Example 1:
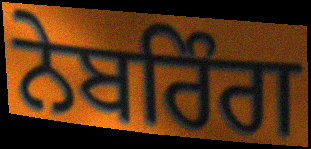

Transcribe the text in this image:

ਨੇਬਰਿੰਗ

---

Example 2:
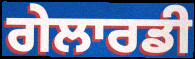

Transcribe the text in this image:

ਗੇਲਾਰਡੀ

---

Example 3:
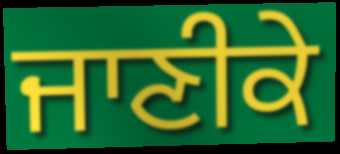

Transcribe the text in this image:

ਜਾਣੀਕੇ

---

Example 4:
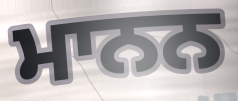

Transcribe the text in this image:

ਮਾਨਨ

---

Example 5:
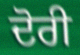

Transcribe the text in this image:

ਦੋਰੀ